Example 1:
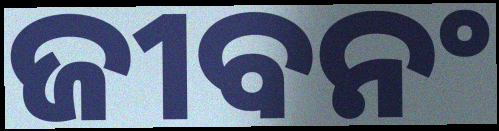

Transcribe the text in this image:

ଜୀବନଂ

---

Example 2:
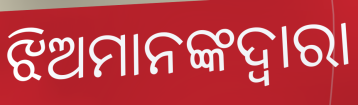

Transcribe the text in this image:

ଝିଅମାନଙ୍କଦ୍ଵାରା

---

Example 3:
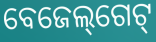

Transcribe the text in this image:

ବେଜେଲ୍‌ଗେଟ୍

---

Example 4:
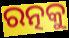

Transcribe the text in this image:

ରତ୍ନକୁ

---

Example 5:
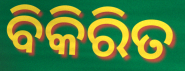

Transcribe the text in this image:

ବିକିରିତ